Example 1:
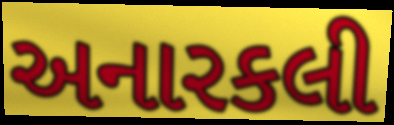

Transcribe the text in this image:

અનારકલી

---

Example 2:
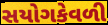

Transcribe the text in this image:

સયોગકેવળી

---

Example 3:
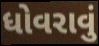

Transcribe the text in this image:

ધોવરાવું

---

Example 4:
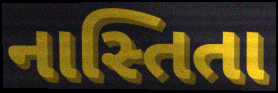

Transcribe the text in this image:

નાસ્તિતા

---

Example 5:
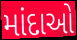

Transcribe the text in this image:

માંદાઓ